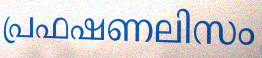
പ്രഫഷണലിസം